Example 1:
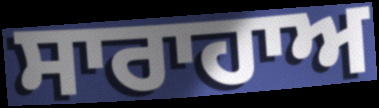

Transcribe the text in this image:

ਸਾਰਾਹਾਅ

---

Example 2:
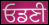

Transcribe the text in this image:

ਓਡਣੀ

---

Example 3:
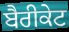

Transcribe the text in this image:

ਬੈਰੀਕੇਟ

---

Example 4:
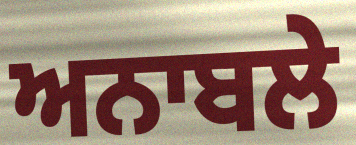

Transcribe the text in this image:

ਅਨਾਬਲੇ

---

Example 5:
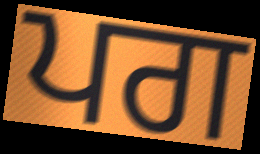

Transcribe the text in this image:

ਪਗ